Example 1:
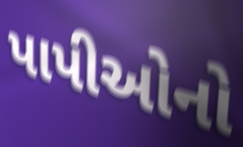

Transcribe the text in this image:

પાપીઓનો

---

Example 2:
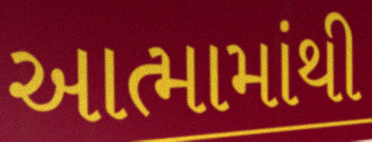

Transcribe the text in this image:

આત્મામાંથી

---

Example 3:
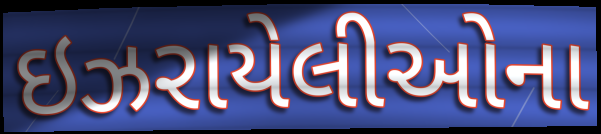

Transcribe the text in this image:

ઇઝરાયેલીઓના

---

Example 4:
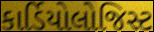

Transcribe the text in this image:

કાર્ડિયોલોજિસ્ટ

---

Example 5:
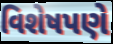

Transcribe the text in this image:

વિશેષપણે